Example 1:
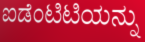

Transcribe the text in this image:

ಐಡೆಂಟಿಟಿಯನ್ನು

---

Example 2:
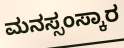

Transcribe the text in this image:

ಮನಸ್ಸಂಸ್ಕಾರ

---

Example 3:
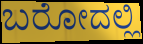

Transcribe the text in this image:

ಬರೋದಲ್ಲಿ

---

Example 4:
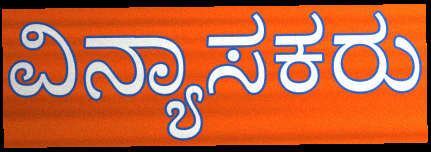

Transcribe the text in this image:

ವಿನ್ಯಾಸಕರು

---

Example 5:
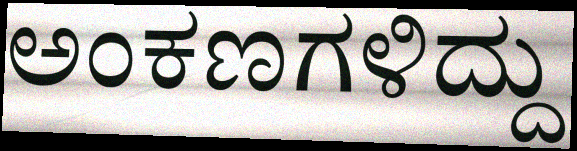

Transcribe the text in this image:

ಅಂಕಣಗಳಿದ್ದು